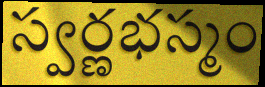
స్వర్ణభస్మం